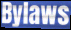
Bylaws